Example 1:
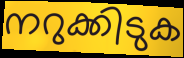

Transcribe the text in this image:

നറുക്കിടുക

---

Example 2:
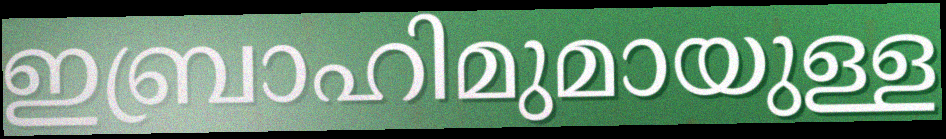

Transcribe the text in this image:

ഇബ്രാഹിമുമായുള്ള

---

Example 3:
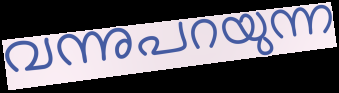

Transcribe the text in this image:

വന്നുപറയുന്ന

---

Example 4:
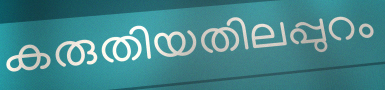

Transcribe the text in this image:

കരുതിയതിലപ്പുറം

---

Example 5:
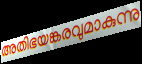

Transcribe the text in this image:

അതിഭയങ്കരവുമാകുന്നു